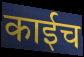
काईच